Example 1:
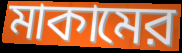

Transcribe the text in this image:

মাকামের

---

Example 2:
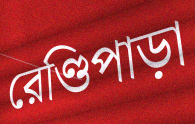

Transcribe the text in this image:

রেণ্ডিপাড়া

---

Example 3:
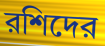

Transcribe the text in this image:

রশিদের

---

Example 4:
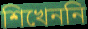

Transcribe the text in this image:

শিখেননি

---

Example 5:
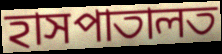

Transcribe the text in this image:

হাসপাতালত